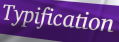
Typification